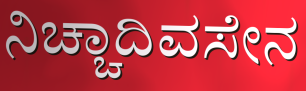
ನಿಚ್ಚಾದಿವಸೇನ